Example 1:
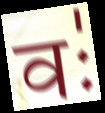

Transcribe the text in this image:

वः॑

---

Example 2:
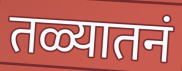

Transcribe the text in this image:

तळ्यातनं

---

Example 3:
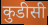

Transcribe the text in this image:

कुडीसी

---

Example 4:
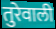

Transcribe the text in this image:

तुरेवाली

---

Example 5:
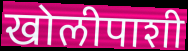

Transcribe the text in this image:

खोलीपाशी